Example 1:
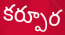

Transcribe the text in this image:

కర్పూర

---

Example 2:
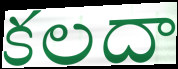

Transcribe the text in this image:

కలదా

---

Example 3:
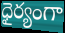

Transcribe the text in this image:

ధైర్యంగా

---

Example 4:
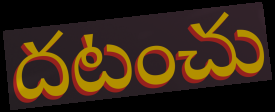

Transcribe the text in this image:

దటంచు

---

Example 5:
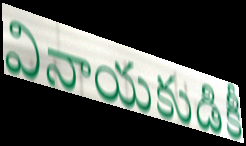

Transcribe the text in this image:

వినాయకుడికీ